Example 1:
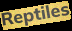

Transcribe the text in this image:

Reptiles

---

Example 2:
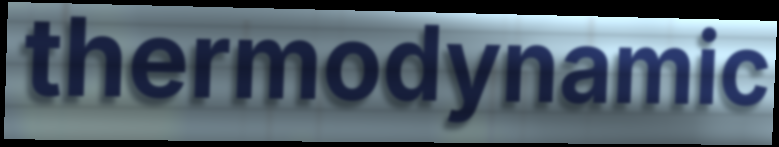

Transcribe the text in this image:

thermodynamic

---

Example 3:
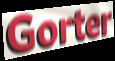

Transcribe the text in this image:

Gorter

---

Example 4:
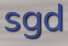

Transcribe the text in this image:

sgd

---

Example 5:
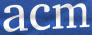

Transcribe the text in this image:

acm